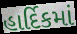
હાર્દિકમાં